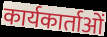
कार्यकार्ताओं